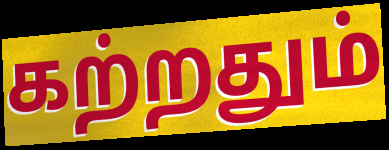
கற்றதும்